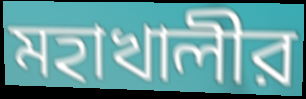
মহাখালীর